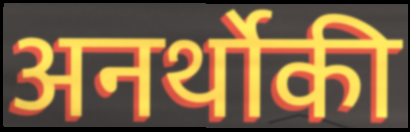
अनर्थोकी